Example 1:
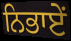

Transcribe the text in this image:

ਨਿਭਾਏਂ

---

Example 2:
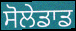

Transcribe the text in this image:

ਸੋਲੇਡਾਡ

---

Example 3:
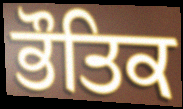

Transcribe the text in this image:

ਭੌਤਿਕ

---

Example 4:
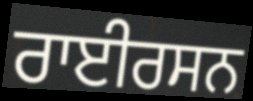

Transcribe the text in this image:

ਰਾਈਰਸਨ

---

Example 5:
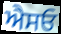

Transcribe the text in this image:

ਐਸਓ